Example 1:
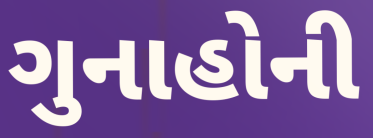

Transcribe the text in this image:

ગુનાહોની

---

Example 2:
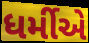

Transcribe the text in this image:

ધર્મીએ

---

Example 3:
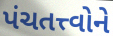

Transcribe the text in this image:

પંચતત્ત્વોને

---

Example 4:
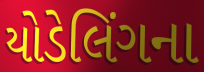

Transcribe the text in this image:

યોડેલિંગના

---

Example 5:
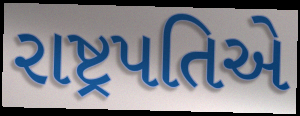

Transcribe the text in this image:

રાષ્ટ્રપતિએ